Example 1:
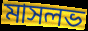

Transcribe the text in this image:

মাসলভ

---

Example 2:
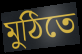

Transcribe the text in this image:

মুঠিতে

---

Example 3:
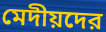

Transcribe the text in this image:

মেদীয়দের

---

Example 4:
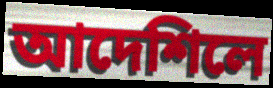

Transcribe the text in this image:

আদেশিলে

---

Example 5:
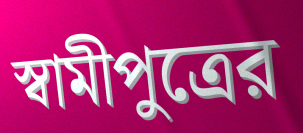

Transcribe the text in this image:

স্বামীপুত্রের